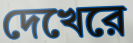
দেখেরে